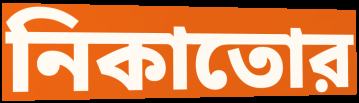
নিকাতোর